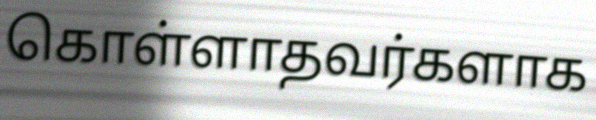
கொள்ளாதவர்களாக